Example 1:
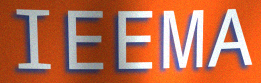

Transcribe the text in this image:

IEEMA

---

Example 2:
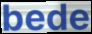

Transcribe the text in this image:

bede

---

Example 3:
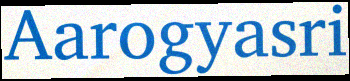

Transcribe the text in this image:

Aarogyasri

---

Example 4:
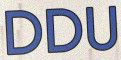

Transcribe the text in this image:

DDU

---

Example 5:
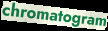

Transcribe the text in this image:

chromatogram